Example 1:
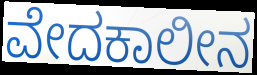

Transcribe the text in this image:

ವೇದಕಾಲೀನ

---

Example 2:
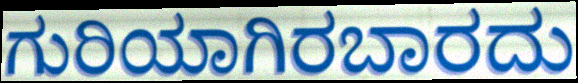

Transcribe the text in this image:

ಗುರಿಯಾಗಿರಬಾರದು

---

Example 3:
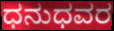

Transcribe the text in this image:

ಧನುಧವರ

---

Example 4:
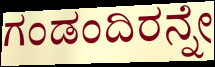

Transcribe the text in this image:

ಗಂಡಂದಿರನ್ನೇ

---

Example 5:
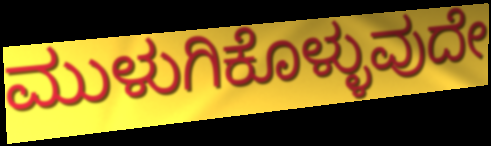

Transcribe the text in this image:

ಮುಳುಗಿಕೊಳ್ಳುವುದೇ